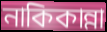
নাকিকান্না